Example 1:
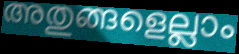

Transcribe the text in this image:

അതുങ്ങളെല്ലാം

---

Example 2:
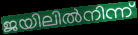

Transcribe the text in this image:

ജയിലിൽനിന്ന്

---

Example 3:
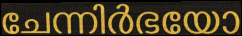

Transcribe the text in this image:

ചേന്നിർഭയോ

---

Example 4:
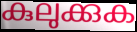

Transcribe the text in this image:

കുലുക്കുക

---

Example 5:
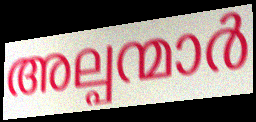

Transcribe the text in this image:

അല്പന്മാർ